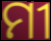
ମୀ